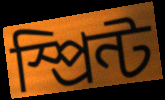
স্প্রিন্ট